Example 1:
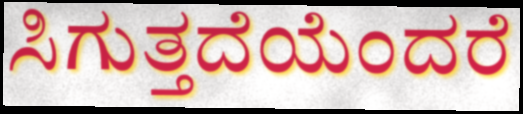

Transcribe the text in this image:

ಸಿಗುತ್ತದೆಯೆಂದರೆ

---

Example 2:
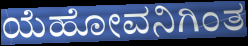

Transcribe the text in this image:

ಯೆಹೋವನಿಗಿಂತ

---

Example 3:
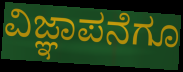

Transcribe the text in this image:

ವಿಜ್ಞಾಪನೆಗೂ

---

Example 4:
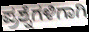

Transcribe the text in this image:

ಪ್ರಶ್ನೆಗಳಿಗಾಗಿ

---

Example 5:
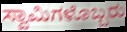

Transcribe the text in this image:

ಸ್ವಾಮಿಗಳೊಬ್ಬರು